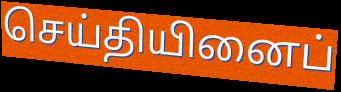
செய்தியினைப்